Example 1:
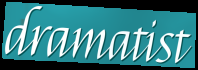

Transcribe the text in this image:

dramatist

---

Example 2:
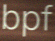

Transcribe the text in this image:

bpf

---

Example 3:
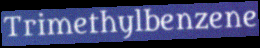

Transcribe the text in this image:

Trimethylbenzene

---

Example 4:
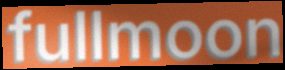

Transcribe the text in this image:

fullmoon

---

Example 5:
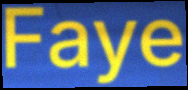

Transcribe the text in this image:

Faye